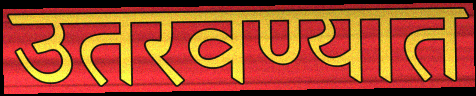
उतरवण्यात